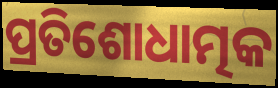
ପ୍ରତିଶୋଧାତ୍ମକ